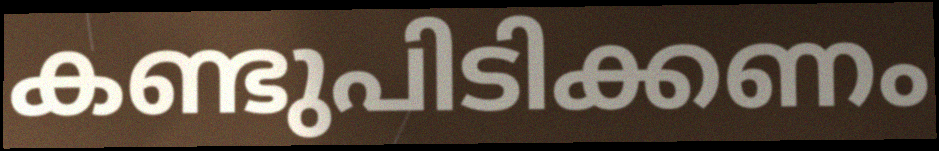
കണ്ടുപിടിക്കണം